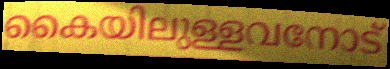
കൈയിലുള്ളവനോട്